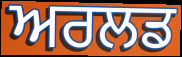
ਅਰਲਡ